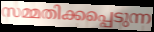
സമ്മതിക്കപ്പെടുന്ന